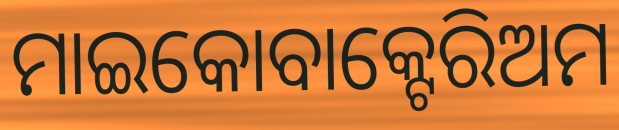
ମାଇକୋବାକ୍ଟେରିଅମ